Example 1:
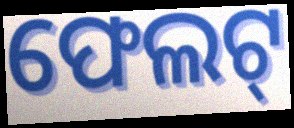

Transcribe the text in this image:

ଫେଲଟ୍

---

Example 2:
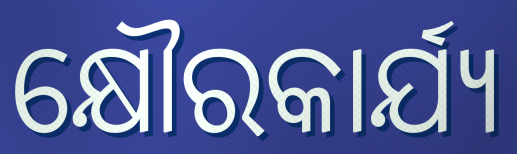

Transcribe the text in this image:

କ୍ଷୌରକାର୍ଯ୍ୟ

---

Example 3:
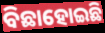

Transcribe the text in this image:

ବିଛାହୋଇଛି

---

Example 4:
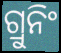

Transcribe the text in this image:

ଗ୍ରୁନିଂ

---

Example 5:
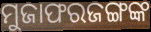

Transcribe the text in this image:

ମୁଜାଫରଜଙ୍ଗଙ୍କ